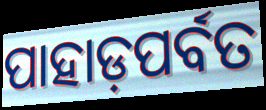
ପାହାଡ଼ପର୍ବତ